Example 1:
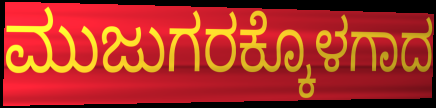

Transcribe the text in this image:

ಮುಜುಗರಕ್ಕೊಳಗಾದ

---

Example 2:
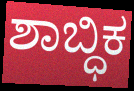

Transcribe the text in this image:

ಶಾಬ್ಧಿಕ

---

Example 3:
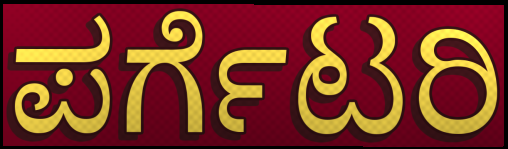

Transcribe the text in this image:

ಪರ್ಗೆಟರಿ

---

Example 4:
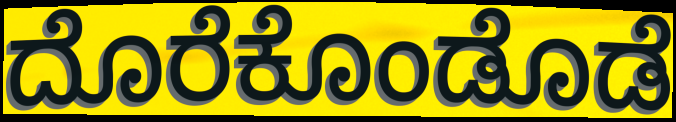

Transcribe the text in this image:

ದೊರೆಕೊಂಡೊಡೆ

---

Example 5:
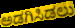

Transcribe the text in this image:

ಅಡಗಿಸಿಡಲು